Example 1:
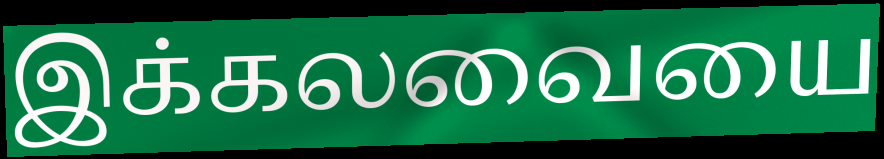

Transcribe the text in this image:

இக்கலவையை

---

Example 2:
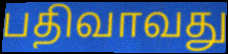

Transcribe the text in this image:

பதிவாவது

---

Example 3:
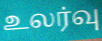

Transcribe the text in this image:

உலர்வு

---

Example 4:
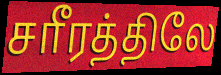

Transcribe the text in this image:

சரீரத்திலே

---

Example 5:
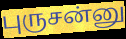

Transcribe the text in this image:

புருசன்னு